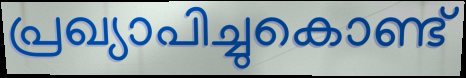
പ്രഖ്യാപിച്ചുകൊണ്ട്